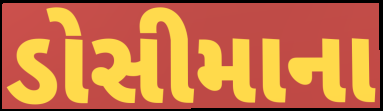
ડોસીમાના